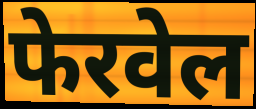
फेरवेल